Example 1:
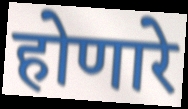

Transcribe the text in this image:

होणारे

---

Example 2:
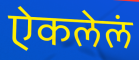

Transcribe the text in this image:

ऐकलेलं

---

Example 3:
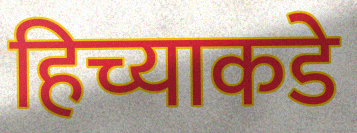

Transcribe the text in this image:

हिच्याकडे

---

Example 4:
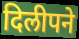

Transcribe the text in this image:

दिलीपने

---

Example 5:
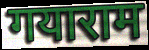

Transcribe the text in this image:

गयाराम